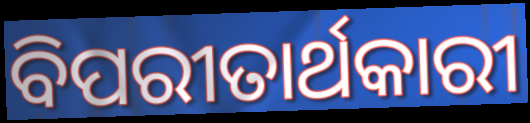
ବିପରୀତାର୍ଥକାରୀ